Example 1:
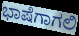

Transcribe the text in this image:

ಭಾಷೆಗಾಗಲಿ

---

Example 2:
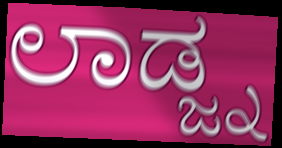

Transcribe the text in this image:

ಲಾಡ್ಜ್ನ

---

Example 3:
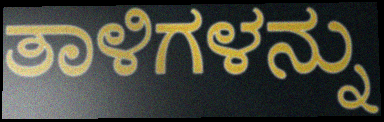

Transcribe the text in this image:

ತಾಳಿಗಳನ್ನು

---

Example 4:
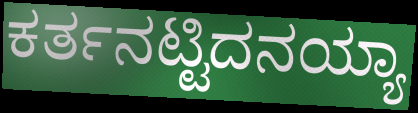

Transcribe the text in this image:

ಕರ್ತನಟ್ಟಿದನಯ್ಯಾ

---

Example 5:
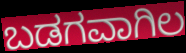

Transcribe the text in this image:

ಬಡಗವಾಗಿಲ